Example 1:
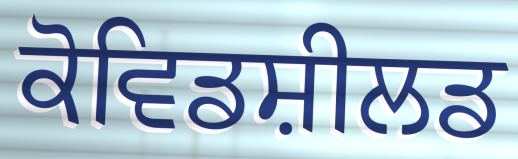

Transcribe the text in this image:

ਕੋਵਿਡਸ਼ੀਲਡ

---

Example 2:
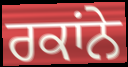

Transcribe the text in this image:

ਰਕਾਂਨੇ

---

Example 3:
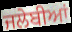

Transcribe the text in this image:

ਜਲੇਬੀਆਂ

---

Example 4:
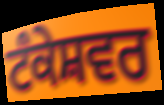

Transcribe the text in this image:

ਟੰਕੇਸ਼ਵਰ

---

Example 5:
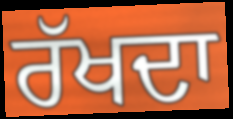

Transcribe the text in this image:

ਰੱਖਦਾ